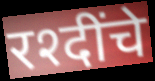
रश्दींचे